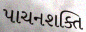
પાચનશક્તિ